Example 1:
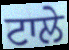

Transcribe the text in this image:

ਟਾਲੇ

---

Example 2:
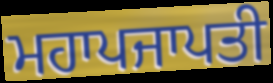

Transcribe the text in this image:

ਮਹਾਪਜਾਪਤੀ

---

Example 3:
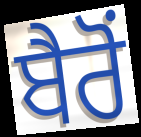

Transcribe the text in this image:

ਬੈਰੋਂ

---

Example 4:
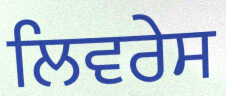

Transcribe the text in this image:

ਲਿਵਰੇਸ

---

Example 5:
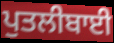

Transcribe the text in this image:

ਪੁਤਲੀਬਾਈ